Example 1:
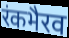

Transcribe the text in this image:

रंकभैरव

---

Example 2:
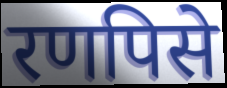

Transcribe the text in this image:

रणपिसे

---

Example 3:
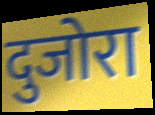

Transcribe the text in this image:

दुजोरा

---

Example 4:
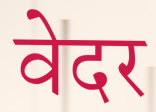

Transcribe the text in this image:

वेदर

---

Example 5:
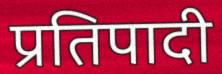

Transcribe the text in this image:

प्रतिपादी